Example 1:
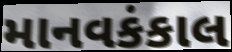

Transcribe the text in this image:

માનવકંકાલ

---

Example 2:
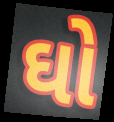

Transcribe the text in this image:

ઘો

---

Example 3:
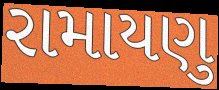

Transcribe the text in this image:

રામાયણુ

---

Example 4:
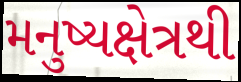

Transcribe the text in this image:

મનુષ્યક્ષેત્રથી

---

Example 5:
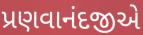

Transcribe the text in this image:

પ્રણવાનંદજીએ